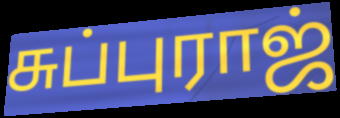
சுப்புராஜ்